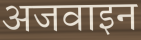
अजवाइन